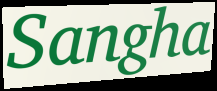
Sangha